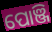
ପୋଞ୍ଜି